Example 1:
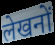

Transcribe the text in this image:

लेखनों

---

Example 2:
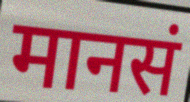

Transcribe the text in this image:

मानसं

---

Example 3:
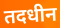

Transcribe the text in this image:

तदधीन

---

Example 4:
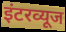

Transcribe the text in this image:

इंटरव्यूज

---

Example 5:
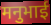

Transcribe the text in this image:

मनुभाई